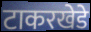
टाकरखेडे